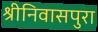
श्रीनिवासपुरा